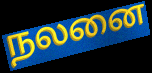
நலனை